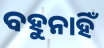
ବହୁନାହିଁ